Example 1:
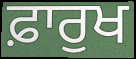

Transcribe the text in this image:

ਫ਼ਾਰੁਖ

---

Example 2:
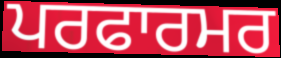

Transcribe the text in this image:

ਪਰਫਾਰਮਰ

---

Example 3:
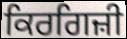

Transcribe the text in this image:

ਕਿਰਗਿਜ਼ੀ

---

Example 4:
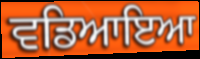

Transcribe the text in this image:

ਵਡਿਆਇਆ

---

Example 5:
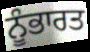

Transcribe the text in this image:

ਨੂੰਭਾਰਤ